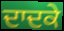
ਦਾਦਕੇ